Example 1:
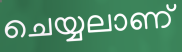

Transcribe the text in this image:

ചെയ്യലാണ്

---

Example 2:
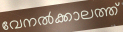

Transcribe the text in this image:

വേനൽക്കാലത്ത്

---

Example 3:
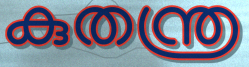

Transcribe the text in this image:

കുതന്ത്ര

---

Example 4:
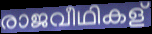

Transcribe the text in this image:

രാജവീഥികള്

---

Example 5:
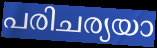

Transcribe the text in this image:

പരിചര്യയാ